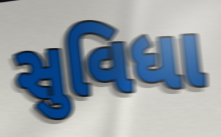
સુવિધા